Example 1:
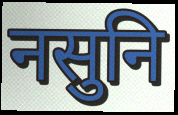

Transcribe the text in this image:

नसुनि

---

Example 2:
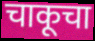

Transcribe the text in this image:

चाकूचा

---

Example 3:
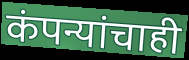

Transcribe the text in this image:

कंपन्यांचाही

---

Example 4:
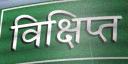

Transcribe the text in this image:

विक्षिप्त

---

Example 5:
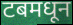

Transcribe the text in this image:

टबमधून